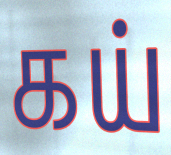
கய்